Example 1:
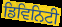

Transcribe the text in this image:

ਡਿਵਿਨਿਟੀ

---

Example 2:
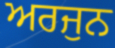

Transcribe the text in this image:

ਅਰਜੁਨ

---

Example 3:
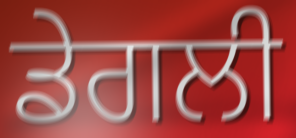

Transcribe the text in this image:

ਡੇਗਲੀ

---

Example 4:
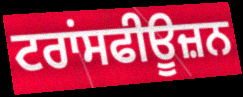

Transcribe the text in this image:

ਟਰਾਂਸਫੀਊਜ਼ਨ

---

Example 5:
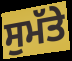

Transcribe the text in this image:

ਸੁਮੱਤੇ